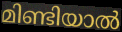
മിണ്ടിയാൽ